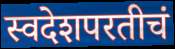
स्वदेशपरतीचं